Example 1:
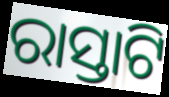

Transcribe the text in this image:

ରାସ୍ତାଟି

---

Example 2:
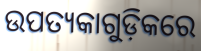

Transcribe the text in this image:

ଉପତ୍ୟକାଗୁଡ଼ିକରେ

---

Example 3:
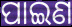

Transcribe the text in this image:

ପାଇଣ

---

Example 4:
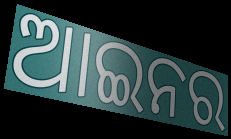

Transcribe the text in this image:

ଆଇନର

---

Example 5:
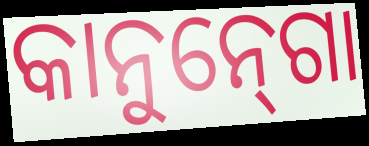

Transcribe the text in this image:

କାନୁନ୍‍ଗୋ